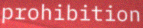
prohibition